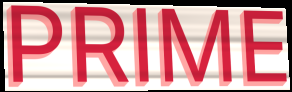
PRIME